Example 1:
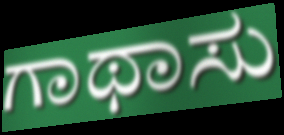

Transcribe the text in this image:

ಗಾಥಾಸು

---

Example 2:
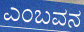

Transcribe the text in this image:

ಎಂಬವನ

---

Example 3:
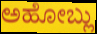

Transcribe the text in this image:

ಅಹೋಬ್ಲು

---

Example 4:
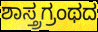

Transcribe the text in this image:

ಶಾಸ್ತ್ರಗ್ರಂಥದ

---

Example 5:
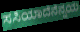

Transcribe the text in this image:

ಸಸಿಯಾದೆನೆನ್ನಯ